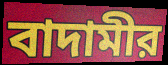
বাদামীর